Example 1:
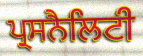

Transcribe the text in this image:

ਪ੍ਰਸਨੈਲਿਟੀ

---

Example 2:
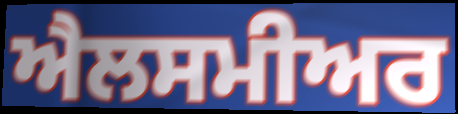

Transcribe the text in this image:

ਐਲਸਮੀਅਰ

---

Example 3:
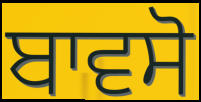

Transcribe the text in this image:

ਬਾਵਸੋ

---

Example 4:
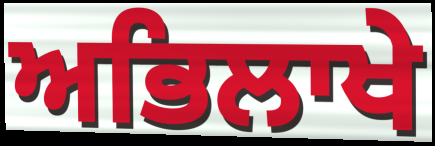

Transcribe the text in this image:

ਅਭਿਲਾਖੇ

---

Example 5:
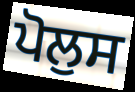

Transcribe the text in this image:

ਪੋਲੁਸ